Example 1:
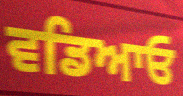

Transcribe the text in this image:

ਵਡਿਆਓ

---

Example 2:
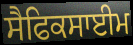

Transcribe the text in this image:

ਸੈਫਿਕਸਾਈਮ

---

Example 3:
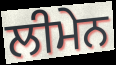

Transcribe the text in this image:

ਲੀਮੇਨ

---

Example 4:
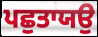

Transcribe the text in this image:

ਪਛੁਤਾਯਉ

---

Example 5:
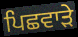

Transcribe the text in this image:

ਪਿਛਵਾੜੇ